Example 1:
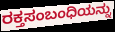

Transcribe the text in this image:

ರಕ್ತಸಂಬಂಧಿಯನ್ನು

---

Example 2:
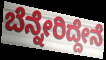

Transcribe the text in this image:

ಬೆನ್ನೇರಿದ್ದೇನೆ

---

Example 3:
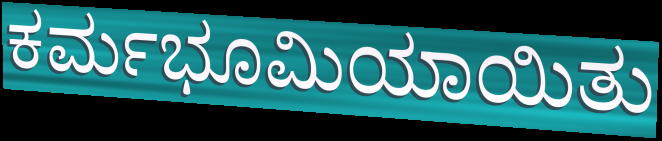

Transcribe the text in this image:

ಕರ್ಮಭೂಮಿಯಾಯಿತು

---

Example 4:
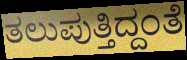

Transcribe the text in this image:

ತಲುಪುತ್ತಿದ್ದಂತೆ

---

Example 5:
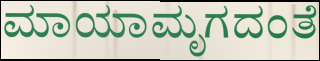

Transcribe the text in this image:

ಮಾಯಾಮೃಗದಂತೆ